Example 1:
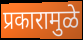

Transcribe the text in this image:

प्रकारामुळे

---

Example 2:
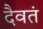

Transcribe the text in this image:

दैवतं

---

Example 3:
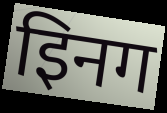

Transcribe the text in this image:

इिनग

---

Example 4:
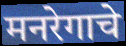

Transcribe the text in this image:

मनरेगाचे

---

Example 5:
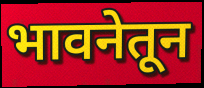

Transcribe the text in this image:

भावनेतून